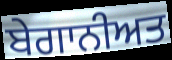
ਬੇਗਾਨੀਅਤ